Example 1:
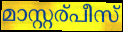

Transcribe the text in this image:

മാസ്റ്റര്പീസ്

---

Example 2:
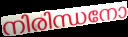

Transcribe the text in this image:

നിരിന്ധനോ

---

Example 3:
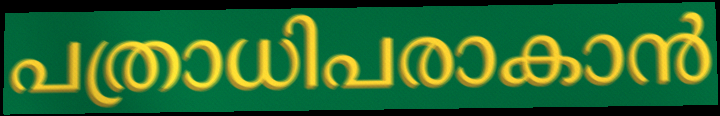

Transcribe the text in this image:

പത്രാധിപരാകാൻ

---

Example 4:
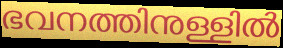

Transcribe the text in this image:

ഭവനത്തിനുള്ളിൽ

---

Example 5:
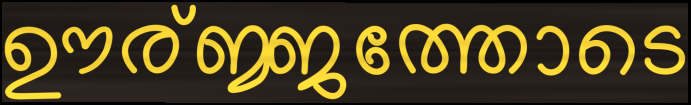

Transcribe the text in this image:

ഊര്ജ്ജത്തോടെ